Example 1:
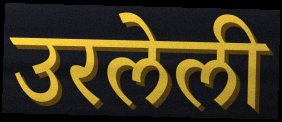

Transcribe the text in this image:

उरलेली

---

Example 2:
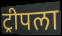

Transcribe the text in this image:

ट्रीपला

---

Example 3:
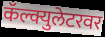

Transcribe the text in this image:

कॅल्क्युलेटरवर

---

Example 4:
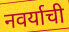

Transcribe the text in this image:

नवर्याची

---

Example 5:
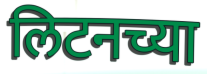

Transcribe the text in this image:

लिटनच्या